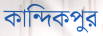
কান্দিকপুর